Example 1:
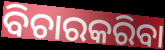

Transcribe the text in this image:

ବିଚାରକରିବା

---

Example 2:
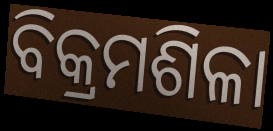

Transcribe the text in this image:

ବିକ୍ରମଶିଳା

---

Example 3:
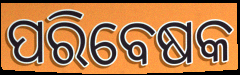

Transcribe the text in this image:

ପରିବେଷକ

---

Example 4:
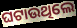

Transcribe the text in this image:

ଘଟାଉଥିଲେ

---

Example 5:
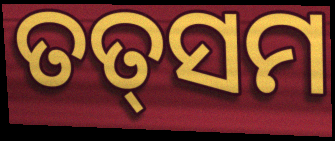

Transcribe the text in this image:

ତତ୍‍ସମ